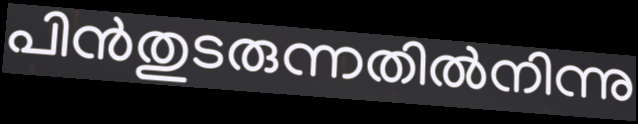
പിൻതുടരുന്നതിൽനിന്നു